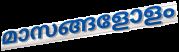
മാസങ്ങളോളം